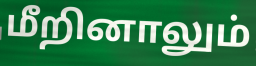
மீறினாலும்